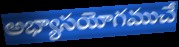
అభ్యాసయోగముచే